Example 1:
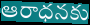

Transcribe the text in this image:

ఆరాధనకు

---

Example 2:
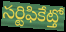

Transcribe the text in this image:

సర్టిఫికేట్తో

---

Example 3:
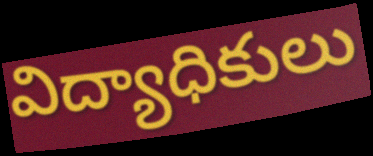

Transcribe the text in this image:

విద్యాధికులు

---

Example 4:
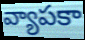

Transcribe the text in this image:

వ్యాపకా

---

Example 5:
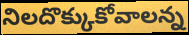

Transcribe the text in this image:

నిలదొక్కుకోవాలన్న